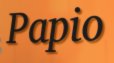
Papio